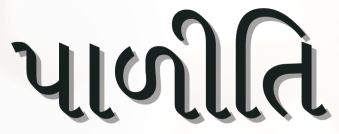
પાળીતિ